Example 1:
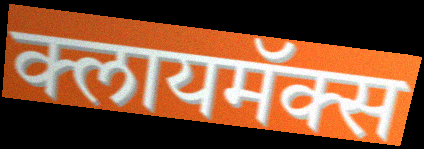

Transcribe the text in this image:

क्लायमॅक्स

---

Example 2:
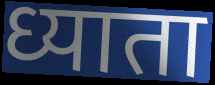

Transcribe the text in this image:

ध्याता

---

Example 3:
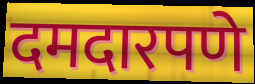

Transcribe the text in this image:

दमदारपणे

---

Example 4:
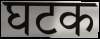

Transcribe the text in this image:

घटक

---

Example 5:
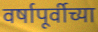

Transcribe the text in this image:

वर्षापूर्वीच्या